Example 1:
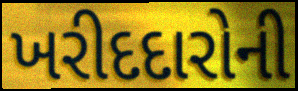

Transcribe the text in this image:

ખરીદદારોની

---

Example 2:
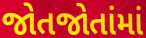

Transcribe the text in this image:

જોતજોતાંમાં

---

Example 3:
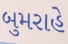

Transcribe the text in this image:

બુમરાહે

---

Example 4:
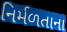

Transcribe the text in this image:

નિર્મળતાના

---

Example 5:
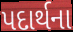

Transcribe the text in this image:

પદાર્થના